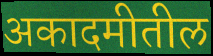
अकादमीतील